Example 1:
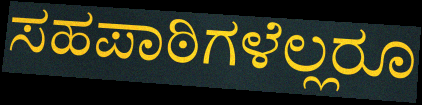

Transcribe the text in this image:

ಸಹಪಾಠಿಗಳೆಲ್ಲರೂ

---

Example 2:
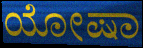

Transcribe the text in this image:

ಯೋಷಾ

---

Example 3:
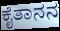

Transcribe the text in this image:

ಕೈತಾನನ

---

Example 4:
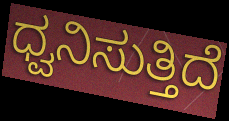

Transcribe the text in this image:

ಧ್ವನಿಸುತ್ತಿದೆ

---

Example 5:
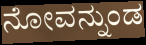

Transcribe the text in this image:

ನೋವನ್ನುಂಡ